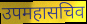
उपमहासचिव